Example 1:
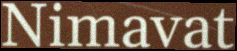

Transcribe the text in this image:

Nimavat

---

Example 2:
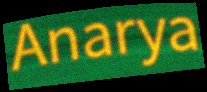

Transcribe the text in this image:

Anarya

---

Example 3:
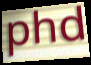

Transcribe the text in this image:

phd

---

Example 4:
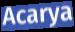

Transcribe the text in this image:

Acarya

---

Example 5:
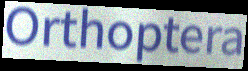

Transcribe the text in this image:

Orthoptera